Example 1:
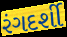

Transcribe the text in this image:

રંગદર્શી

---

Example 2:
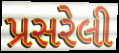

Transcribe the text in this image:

પ્રસરેલી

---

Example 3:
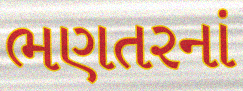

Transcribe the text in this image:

ભણતરનાં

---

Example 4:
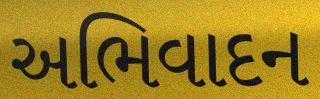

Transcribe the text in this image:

અભિવાદન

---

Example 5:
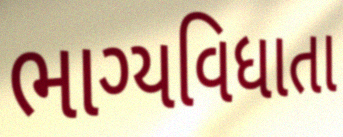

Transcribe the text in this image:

ભાગ્યવિધાતા